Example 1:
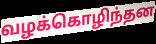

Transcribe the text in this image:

வழக்கொழிந்தன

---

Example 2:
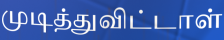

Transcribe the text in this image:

முடித்துவிட்டாள்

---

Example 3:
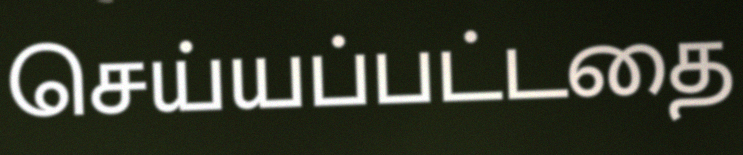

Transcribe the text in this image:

செய்யப்பட்டதை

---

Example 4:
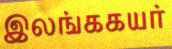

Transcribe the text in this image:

இலங்ககயர்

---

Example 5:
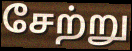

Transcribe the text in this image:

சேற்று